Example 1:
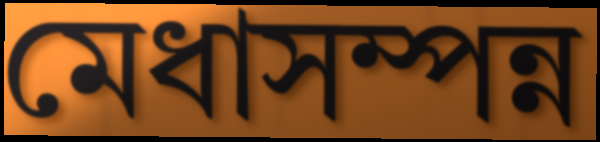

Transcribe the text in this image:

মেধাসম্পন্ন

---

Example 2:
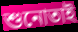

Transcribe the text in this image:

শুনোতাই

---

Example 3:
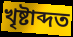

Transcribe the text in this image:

খৃষ্টাব্দত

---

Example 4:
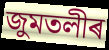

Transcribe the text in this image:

জুমতলীৰ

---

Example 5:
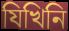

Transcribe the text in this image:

যিখিনি